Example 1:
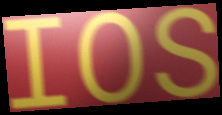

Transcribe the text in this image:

IOS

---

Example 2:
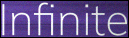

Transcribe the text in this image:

Infinite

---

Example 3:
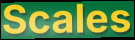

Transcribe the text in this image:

Scales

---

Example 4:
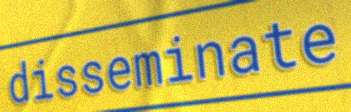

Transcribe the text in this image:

disseminate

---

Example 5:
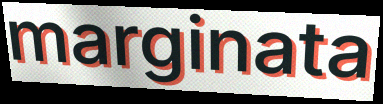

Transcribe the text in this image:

marginata